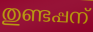
തുണ്ടപ്പന്